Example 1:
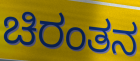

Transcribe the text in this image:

ಚಿರಂತನ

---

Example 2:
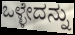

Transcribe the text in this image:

ಒಳ್ಳೇದನ್ನು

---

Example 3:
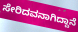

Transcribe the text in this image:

ಸೇರಿದವನಾಗಿದ್ದಾನೆ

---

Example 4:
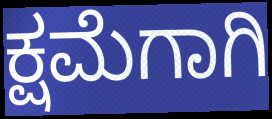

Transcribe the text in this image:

ಕ್ಷಮೆಗಾಗಿ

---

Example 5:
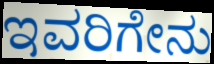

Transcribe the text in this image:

ಇವರಿಗೇನು